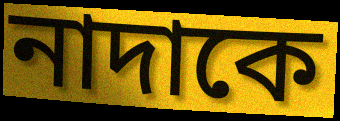
নাদাকে